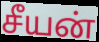
சீயன்